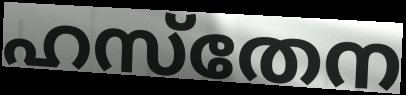
ഹസ്തേന